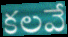
కలవే